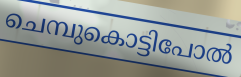
ചെമ്പുകൊട്ടിപോൽ